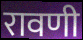
रावणी